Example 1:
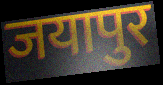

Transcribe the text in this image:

जयापुर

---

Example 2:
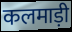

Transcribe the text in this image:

कलमाड़ी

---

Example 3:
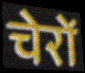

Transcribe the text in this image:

चेरों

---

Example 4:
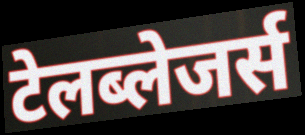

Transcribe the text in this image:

टेलब्लेजर्स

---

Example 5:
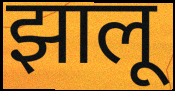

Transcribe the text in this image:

झालू